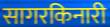
सागरकिनारी